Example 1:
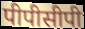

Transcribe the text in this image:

पीपीसीपी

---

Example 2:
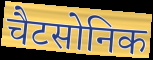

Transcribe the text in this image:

चैटसोनिक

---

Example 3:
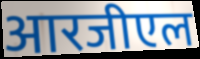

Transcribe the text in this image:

आरजीएल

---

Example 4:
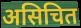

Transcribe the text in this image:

असिचित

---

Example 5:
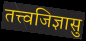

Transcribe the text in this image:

तत्त्वजिज्ञासु